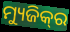
ମ୍ୟୁଜିକ୍‌ର